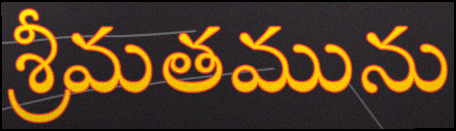
శ్రీమతమును